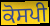
ਕੋਸਪੀ